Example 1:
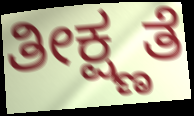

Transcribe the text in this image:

ತೀಕ್ಷ್ಣತೆ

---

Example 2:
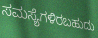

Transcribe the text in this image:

ಸಮಸ್ಯೆಗಳಿರಬಹುದು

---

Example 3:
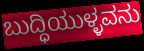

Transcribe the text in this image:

ಬುದ್ಧಿಯುಳ್ಳವನು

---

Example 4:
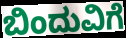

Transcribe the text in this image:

ಬಿಂದುವಿಗೆ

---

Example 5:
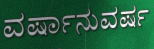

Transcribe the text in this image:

ವರ್ಷಾನುವರ್ಷ